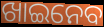
ଖାଇନେବ